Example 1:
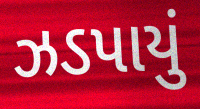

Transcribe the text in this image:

ઝડપાયું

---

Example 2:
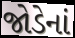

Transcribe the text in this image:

જોડેનાં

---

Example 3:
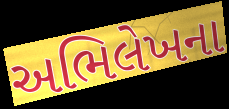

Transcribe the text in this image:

અભિલેખના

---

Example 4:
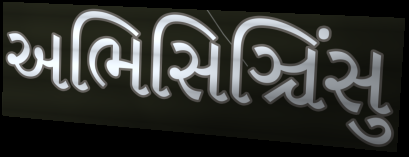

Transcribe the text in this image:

અભિસિઞ્ચિંસુ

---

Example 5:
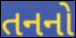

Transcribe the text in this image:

તનનો